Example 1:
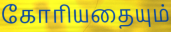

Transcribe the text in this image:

கோரியதையும்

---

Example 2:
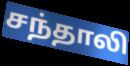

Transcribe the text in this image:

சந்தாலி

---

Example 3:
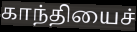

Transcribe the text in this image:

காந்தியைச்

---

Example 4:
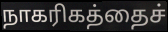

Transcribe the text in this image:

நாகரிகத்தைச்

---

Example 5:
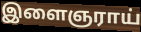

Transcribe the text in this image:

இளைஞராய்